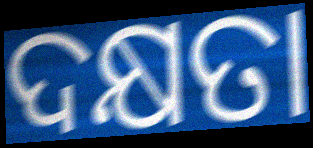
ଦକ୍ଷତା